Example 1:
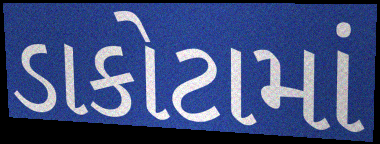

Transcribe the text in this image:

ડાકોટામાં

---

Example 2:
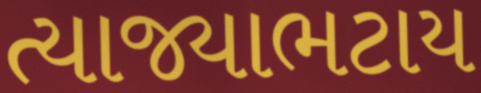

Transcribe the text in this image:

ત્યાજ્યાભટાય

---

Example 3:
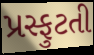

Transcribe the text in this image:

પ્રસ્ફુટતી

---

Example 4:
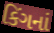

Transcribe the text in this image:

કિંગનાં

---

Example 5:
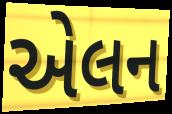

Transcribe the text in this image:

એલન